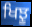
ਖਿਝੂ